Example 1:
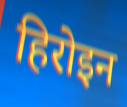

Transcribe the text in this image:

हिरोइन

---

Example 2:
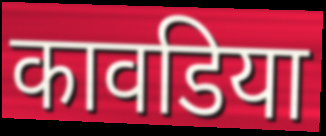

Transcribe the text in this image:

कावडिया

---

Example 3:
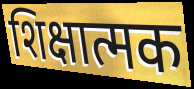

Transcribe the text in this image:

शिक्षात्मक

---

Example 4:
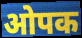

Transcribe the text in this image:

ओपक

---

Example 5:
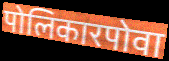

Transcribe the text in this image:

पोलिकारपोवा